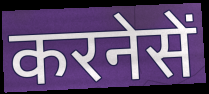
करनेसें